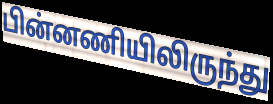
பின்னணியிலிருந்து